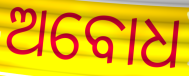
ଅବୋଧ